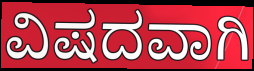
ವಿಷದವಾಗಿ